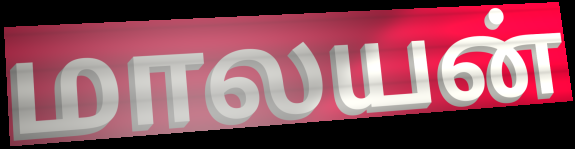
மாலயன்